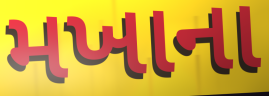
મખાના